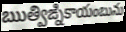
ఋత్విఙ్నికాయంబును